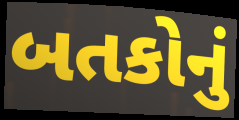
બતકોનું